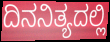
ದಿನನಿತ್ಯದಲ್ಲಿ